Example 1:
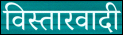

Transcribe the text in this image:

विस्तारवादी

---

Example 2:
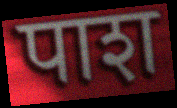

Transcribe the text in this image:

पाश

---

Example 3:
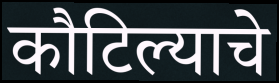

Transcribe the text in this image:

कौटिल्याचे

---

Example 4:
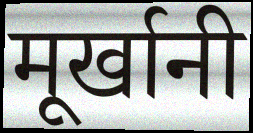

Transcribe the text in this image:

मूर्खानी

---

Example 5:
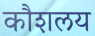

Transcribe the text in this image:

कौशलय